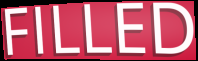
FILLED